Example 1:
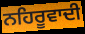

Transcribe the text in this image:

ਨਹਿਰੂਵਾਦੀ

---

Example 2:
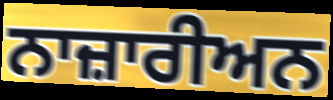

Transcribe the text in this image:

ਨਾਜ਼ਾਰੀਅਨ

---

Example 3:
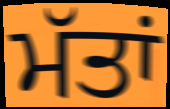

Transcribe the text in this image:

ਮੱਤਾਂ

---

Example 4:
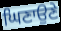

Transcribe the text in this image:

ਘਿਣਾਉਣੇ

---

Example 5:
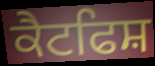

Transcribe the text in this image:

ਕੈਟਫਿਸ਼